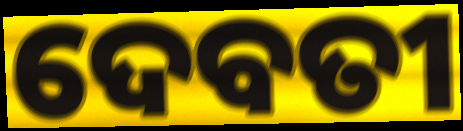
ଦେବତୀ